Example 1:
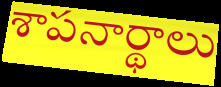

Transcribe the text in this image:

శాపనార్థాలు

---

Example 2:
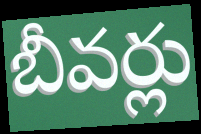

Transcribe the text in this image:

బీవర్లు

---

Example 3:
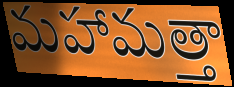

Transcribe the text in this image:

మహామత్తా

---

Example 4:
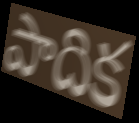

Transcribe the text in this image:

పాదిక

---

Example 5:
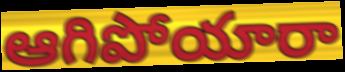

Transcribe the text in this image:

ఆగిపోయారా